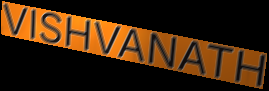
VISHVANATH